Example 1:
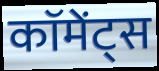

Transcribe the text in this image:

कॉमेंट्स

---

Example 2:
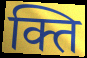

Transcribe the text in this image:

क्ति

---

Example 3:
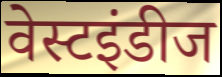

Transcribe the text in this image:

वेस्टइंडीज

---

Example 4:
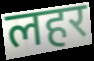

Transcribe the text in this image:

लहर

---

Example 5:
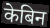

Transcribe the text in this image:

केबिन